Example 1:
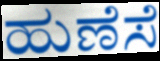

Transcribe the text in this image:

ಹುಣೆಸೆ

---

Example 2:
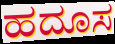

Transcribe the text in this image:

ಹದೂಸ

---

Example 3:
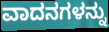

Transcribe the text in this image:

ವಾದನಗಳನ್ನು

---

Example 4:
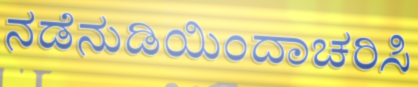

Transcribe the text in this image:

ನಡೆನುಡಿಯಿಂದಾಚರಿಸಿ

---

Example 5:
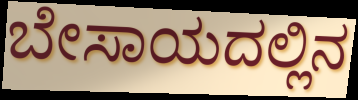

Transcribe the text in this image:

ಬೇಸಾಯದಲ್ಲಿನ